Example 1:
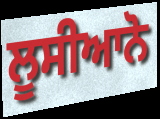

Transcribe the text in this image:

ਲੂਸੀਆਨੋ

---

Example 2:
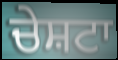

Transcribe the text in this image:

ਚੇਸ਼ਟਾ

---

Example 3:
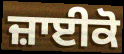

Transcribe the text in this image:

ਜ਼ਾਈਕੋ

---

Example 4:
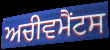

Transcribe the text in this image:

ਅਚੀਵਮੈਂਟਸ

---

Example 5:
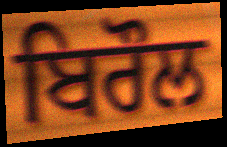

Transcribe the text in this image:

ਬਿਰੌਲ